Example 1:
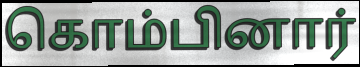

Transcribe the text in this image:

கொம்பினார்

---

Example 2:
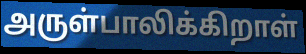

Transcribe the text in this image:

அருள்பாலிக்கிறாள்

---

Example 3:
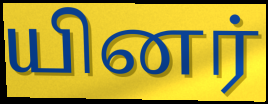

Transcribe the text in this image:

யினர்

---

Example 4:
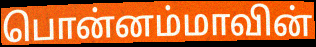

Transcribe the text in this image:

பொன்னம்மாவின்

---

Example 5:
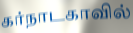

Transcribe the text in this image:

கர்நாடகாவில்